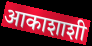
आकाशाशी